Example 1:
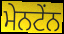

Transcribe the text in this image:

ਮੇਨਟੇਂਨ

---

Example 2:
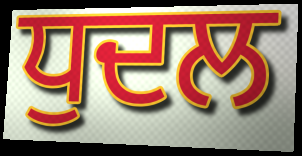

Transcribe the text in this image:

ਧੁਦਲ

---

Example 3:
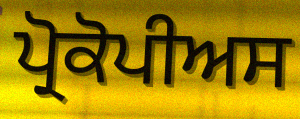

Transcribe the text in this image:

ਪ੍ਰੋਕੋਪੀਅਸ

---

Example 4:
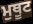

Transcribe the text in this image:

ਮੁਥੂਟ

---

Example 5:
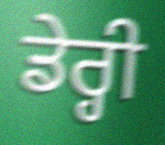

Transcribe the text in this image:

ਡੇਰ੍ਹੀ